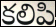
కలిపి